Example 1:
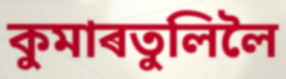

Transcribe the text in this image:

কুমাৰতুলিলৈ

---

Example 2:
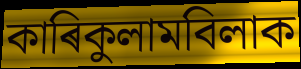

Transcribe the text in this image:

কাৰিকুলামবিলাক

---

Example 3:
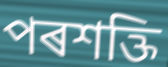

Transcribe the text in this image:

পৰশক্তি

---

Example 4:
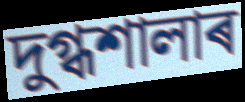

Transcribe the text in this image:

দুগ্ধশালাৰ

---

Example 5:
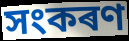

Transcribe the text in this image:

সংকৰণ